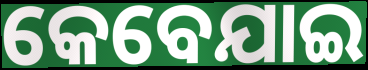
କେବେଯାଇ